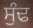
ਸੁੰਢ